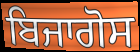
ਬਿਜਾਗੋਸ